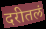
दरीतलं